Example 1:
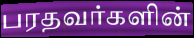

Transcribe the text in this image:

பரதவர்களின்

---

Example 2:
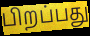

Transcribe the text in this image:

பிறப்பது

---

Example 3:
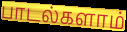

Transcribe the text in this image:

பாடல்களாம்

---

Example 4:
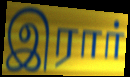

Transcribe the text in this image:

இரார்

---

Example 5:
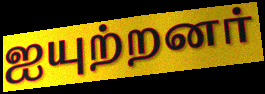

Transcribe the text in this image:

ஐயுற்றனர்